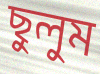
ছুলুম